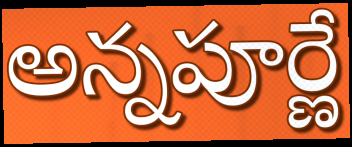
అన్నపూర్ణే